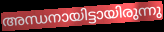
അന്ധനായിട്ടായിരുന്നു